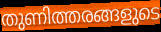
തുണിത്തരങ്ങളുടെ